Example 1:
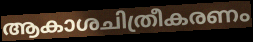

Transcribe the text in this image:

ആകാശചിത്രീകരണം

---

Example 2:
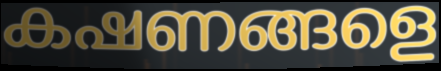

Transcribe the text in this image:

കഷണങ്ങളെ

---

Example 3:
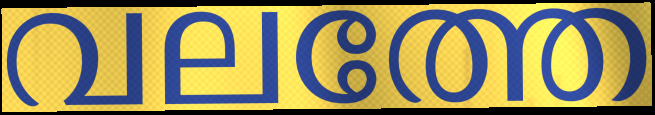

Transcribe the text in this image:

വലത്തേ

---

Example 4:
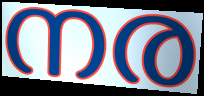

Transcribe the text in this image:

നര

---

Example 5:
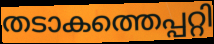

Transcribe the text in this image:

തടാകത്തെപ്പറ്റി